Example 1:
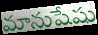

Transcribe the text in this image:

మానుషేషు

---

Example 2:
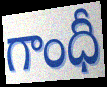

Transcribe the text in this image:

గాంధీ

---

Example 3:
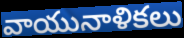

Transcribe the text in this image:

వాయునాళికలు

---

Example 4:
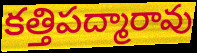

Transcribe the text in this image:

కత్తిపద్మారావు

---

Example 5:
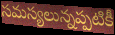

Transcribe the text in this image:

సమస్యలున్నప్పటికీ